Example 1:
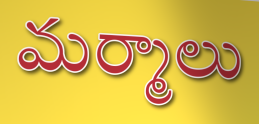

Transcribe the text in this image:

మర్మాలు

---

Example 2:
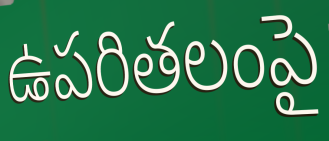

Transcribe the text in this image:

ఉపరితలంపై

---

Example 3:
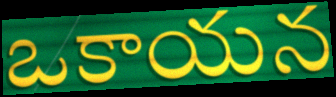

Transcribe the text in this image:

ఒకాయన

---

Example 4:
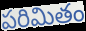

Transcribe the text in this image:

పరిమితం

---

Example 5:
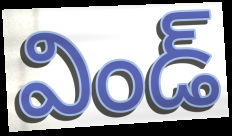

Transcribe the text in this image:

విండ్